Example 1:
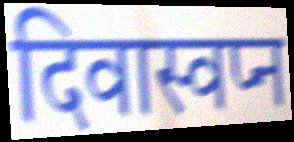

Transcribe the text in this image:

दिवास्‍वप्‍न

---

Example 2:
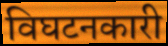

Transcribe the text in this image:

विघटनकारी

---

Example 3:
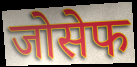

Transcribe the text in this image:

जोसेफ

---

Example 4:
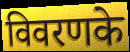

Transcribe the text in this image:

विवरणके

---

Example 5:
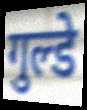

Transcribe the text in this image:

गुल्डे